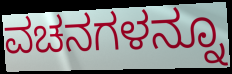
ವಚನಗಳನ್ನೂ